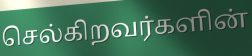
செல்கிறவர்களின்